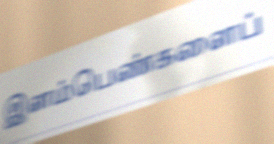
இளம்பெண்களைப்